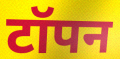
टॉपन